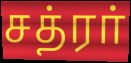
சத்ரர்